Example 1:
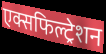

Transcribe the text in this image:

एक्सफिल्ट्रेशन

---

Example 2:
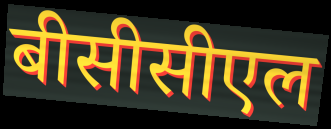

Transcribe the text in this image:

बीसीसीएल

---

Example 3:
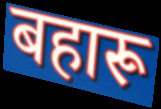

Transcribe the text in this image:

बहारू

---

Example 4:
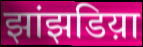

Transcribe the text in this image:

झांझडिय़ा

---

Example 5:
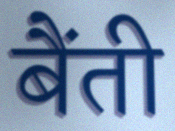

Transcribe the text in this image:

बैंती